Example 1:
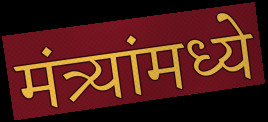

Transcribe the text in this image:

मंत्र्यांमध्ये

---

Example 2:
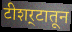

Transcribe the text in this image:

टीशर्टातून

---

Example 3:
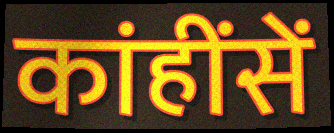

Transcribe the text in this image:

कांहींसें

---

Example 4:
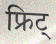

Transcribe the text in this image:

फ्रिट्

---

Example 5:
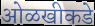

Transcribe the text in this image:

ओळखीकडे